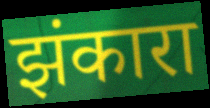
झंकारा